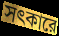
সৎকারে